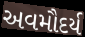
અવમૌદર્ય